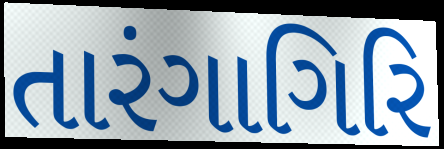
તારંગાગિરિ